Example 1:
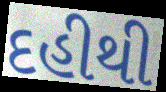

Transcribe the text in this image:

દહીથી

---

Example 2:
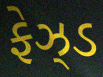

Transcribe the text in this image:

ફેઝ્ડ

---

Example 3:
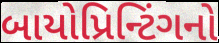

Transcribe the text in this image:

બાયોપ્રિન્ટિંગનો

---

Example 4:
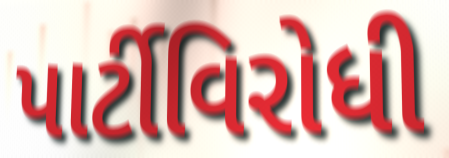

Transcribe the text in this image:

પાર્ટીવિરોધી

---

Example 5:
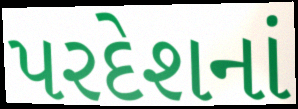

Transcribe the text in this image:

પરદેશનાં